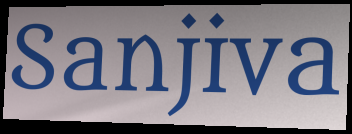
Sanjiva